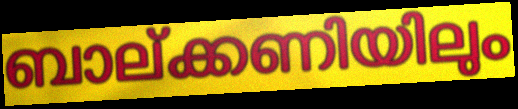
ബാല്ക്കണിയിലും